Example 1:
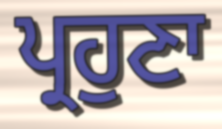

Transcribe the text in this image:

ਪ੍ਰਹੁਣਾ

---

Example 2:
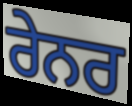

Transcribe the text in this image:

ਰੇਨਰ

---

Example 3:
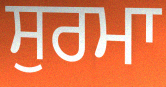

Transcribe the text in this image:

ਸੁਰਮਾ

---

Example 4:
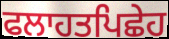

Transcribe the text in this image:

ਫਲਾਹਤਪਿਛੇਹ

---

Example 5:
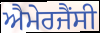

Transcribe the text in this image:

ਐਮੇਰਜੈਂਸੀ